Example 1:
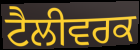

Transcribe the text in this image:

ਟੈਲੀਵਰਕ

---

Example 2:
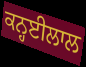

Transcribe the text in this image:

ਕਨ੍ਹਈਲਾਲ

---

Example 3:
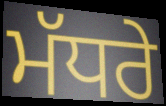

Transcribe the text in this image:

ਮੱਧਰੇ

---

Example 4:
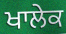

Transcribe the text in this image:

ਖਾਲੇਕ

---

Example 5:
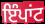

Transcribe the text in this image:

ਇੰਪਾਂਟ